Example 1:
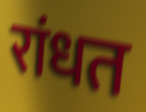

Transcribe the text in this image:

रांधत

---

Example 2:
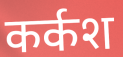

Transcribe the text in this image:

कर्कश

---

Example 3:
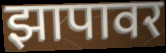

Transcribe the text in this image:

झापावर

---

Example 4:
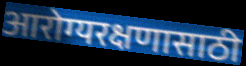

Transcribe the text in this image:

आरोग्यरक्षणासाठी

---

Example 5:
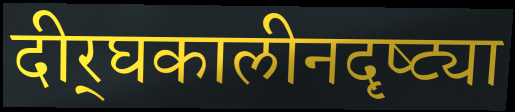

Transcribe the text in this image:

दीर्घकालीनदृष्ट्या